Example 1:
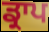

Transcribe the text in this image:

ਡ੍ਰਾਪ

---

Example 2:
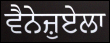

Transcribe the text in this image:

ਵੈਨੇਜ਼ੁਏਲਾ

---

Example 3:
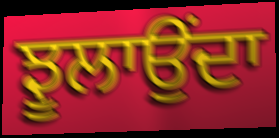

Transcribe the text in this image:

ਝੂਲਾਉਂਦਾ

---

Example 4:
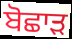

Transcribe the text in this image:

ਬੋਛਾੜ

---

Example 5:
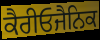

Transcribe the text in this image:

ਕੈਰੀਓਜੈਨਿਕ